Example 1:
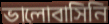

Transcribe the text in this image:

ভালোবাসিনি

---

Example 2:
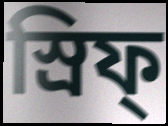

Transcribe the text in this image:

স্রিফ্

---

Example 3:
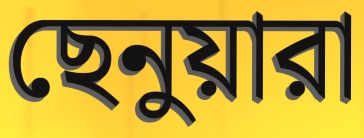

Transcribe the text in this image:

ছেনুয়ারা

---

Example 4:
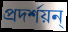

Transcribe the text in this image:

প্রদর্শয়ন্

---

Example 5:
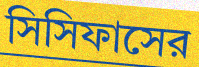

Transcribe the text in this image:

সিসিফাসের